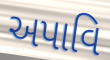
અપાવિ